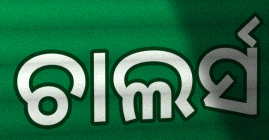
ଚାଲର୍ସ